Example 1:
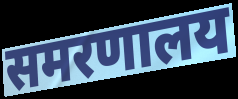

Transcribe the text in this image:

समरणालय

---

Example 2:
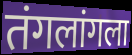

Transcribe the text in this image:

तंगलांगला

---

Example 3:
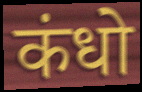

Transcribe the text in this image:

कंधो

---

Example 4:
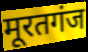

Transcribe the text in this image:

मूरतगंज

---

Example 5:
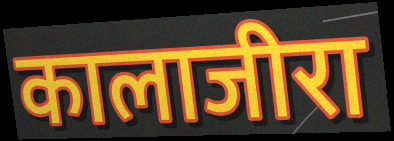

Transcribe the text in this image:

कालाजीरा